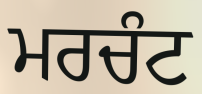
ਮਰਚੰਟ